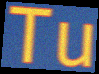
Tu